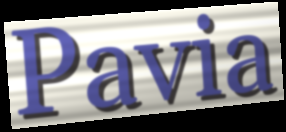
Pavia